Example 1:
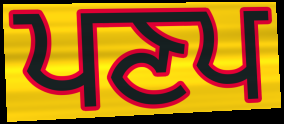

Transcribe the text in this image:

ਪਣਪ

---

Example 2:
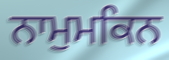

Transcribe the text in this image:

ਨਾਮੁਮਕਿਨ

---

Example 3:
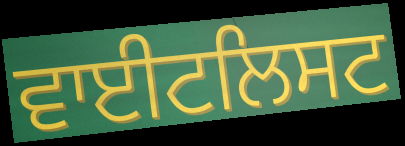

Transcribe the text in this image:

ਵਾਈਟਲਿਸਟ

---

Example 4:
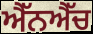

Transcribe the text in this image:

ਐੱਨਐੱਚ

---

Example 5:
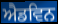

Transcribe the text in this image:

ਐਡਵਿਨ